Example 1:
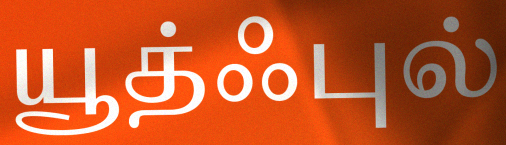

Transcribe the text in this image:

யூத்ஃபுல்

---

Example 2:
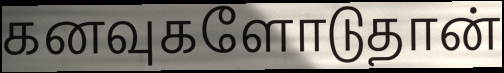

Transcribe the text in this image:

கனவுகளோடுதான்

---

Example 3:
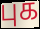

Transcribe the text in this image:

புக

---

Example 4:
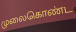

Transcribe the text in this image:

முலைகொண்ட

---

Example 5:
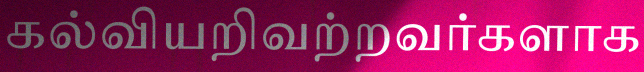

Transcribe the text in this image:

கல்வியறிவற்றவர்களாக